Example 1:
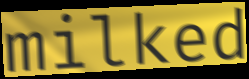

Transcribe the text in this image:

milked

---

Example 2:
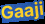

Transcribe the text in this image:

Gaaji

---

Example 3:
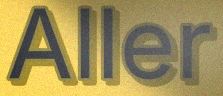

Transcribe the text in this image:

Aller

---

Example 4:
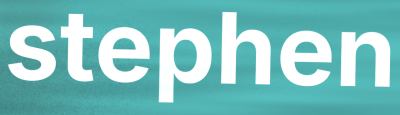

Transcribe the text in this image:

stephen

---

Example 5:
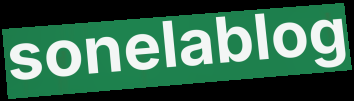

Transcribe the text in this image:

sonelablog